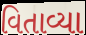
વિતાવ્યા